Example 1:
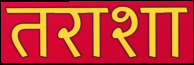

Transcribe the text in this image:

तराशा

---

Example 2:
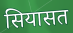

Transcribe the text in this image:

सियासत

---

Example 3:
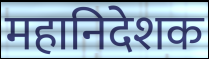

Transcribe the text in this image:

महानिदेशक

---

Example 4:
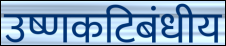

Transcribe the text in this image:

उष्णकटिबंधीय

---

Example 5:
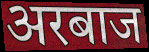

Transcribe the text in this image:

अरबाज